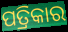
ପତ୍ରିକାର